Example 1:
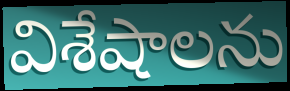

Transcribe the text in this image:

విశేషాలను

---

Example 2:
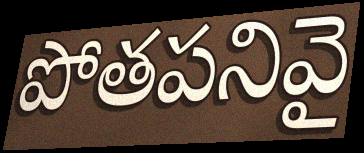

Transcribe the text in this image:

పోతపనివై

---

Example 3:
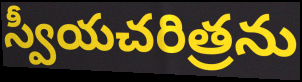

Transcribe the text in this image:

స్వీయచరిత్రను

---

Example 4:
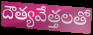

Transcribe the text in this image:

దౌత్యవేత్తలతో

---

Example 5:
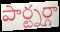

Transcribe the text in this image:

పార్ట్నర్గా